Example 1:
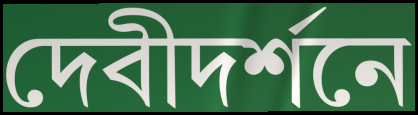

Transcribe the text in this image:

দেবীদর্শনে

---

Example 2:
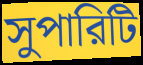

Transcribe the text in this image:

সুপারিটি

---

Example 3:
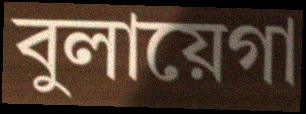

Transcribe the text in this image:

বুলায়েগা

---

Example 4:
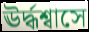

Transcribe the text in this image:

ঊর্দ্ধশ্বাসে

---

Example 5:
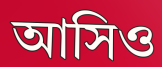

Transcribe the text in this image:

আসিও